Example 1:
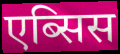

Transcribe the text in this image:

एब्सिस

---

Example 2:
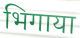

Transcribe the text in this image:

भिगाया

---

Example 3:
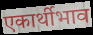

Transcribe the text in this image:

एकार्थीभाव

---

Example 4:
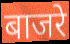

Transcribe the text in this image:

बाजरे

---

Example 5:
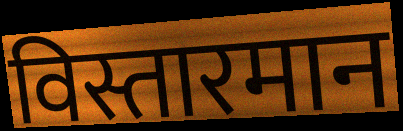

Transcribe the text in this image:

विस्तारमान